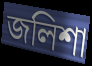
জলিশা